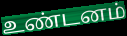
உண்டனம்